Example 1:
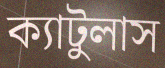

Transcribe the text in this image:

ক্যাটুলাস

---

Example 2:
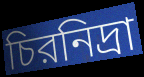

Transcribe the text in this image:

চিরনিদ্রা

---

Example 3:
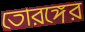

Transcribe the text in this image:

তোরঙ্গের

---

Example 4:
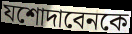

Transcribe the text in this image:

যশোদাবেনকে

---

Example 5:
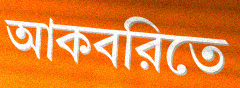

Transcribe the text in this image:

আকবরিতে